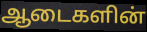
ஆடைகளின்